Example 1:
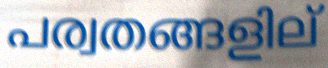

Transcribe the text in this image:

പര്വതങ്ങളില്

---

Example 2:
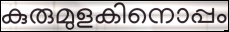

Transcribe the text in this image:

കുരുമുളകിനൊപ്പം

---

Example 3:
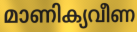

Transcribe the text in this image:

മാണിക്യവീണ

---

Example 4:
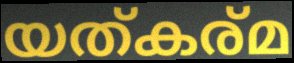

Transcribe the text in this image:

യത്കര്മ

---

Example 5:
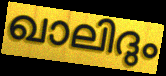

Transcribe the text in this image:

ഖാലിദും